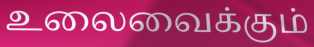
உலைவைக்கும்